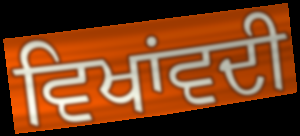
ਵਿਖਾਂਵਦੀ